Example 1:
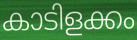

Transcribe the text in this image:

കാടിളക്കം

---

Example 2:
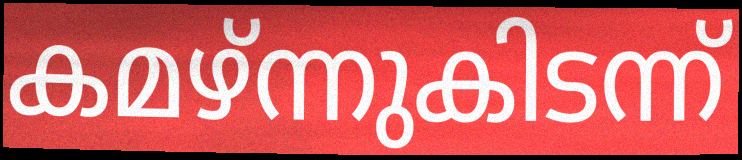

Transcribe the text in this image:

കമഴ്ന്നുകിടന്ന്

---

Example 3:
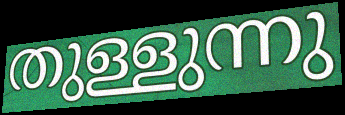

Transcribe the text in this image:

തുള്ളുന്നു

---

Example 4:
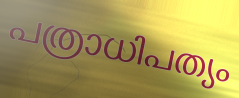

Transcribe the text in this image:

പത്രാധിപത്യം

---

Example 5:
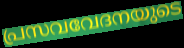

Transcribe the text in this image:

പ്രസവവേദനയുടെ